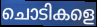
ചൊടികളെ